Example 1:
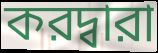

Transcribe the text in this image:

করদ্বারা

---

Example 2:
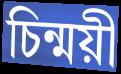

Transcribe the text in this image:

চিন্ময়ী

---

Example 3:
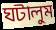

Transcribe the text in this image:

ঘটালুম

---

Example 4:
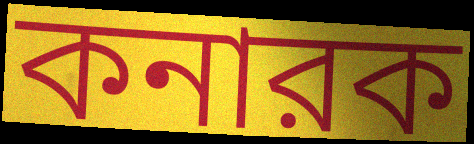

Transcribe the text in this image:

কনারক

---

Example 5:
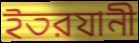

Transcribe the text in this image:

ইতরযানী